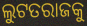
ଲୁଟତରାଜକୁ